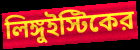
লিঙ্গুইস্টিকের